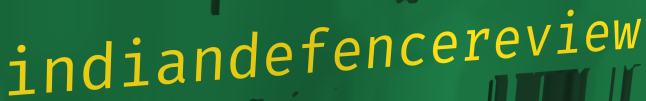
indiandefencereview